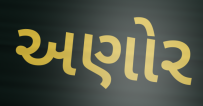
અણોર